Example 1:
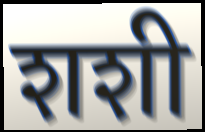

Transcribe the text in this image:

शशी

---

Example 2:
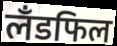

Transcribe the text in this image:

लँडफिल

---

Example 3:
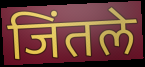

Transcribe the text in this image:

जिंतले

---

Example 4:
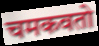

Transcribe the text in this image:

चमकवतो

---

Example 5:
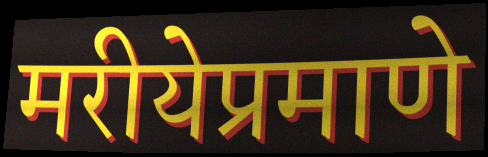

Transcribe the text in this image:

मरीयेप्रमाणे